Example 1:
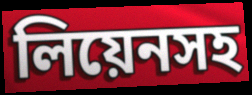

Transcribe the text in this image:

লিয়েনসহ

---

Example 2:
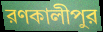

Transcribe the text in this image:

রণকালীপুর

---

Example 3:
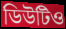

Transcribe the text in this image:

ডিউটিও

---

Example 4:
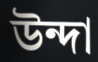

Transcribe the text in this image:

উন্দা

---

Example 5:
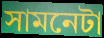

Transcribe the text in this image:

সামনেটা